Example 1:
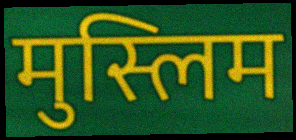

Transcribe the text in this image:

मुस्लिम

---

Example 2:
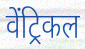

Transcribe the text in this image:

वेंट्रिकल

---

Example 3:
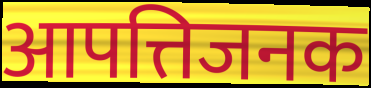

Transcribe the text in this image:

आपत्तिजनक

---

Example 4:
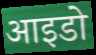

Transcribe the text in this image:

आइडो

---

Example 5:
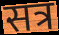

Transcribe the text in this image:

सत्र